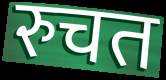
रुचत